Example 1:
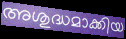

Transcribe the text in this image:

അശുദ്ധമാക്കിയ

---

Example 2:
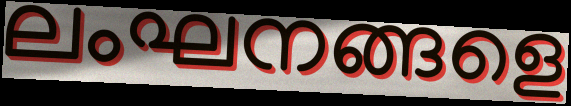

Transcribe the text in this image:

ലംഘനങ്ങളെ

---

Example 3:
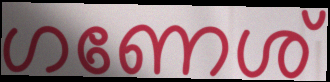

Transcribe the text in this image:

ഗണേശ്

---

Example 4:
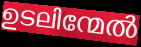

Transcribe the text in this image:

ഉടലിന്മേൽ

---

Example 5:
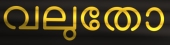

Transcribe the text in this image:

വലുതോ